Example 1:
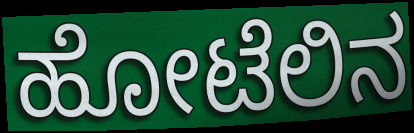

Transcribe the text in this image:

ಹೋಟೆಲಿನ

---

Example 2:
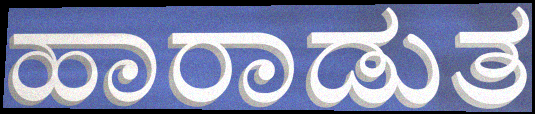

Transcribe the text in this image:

ಹಾರಾಡುತ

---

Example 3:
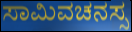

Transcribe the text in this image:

ಸಾಮಿವಚನಸ್ಸ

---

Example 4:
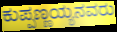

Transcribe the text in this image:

ಕುಪ್ಪಣ್ಣಯ್ಯನವರು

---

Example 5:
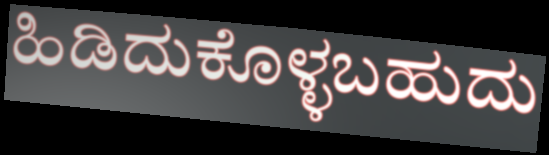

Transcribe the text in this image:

ಹಿಡಿದುಕೊಳ್ಳಬಹುದು